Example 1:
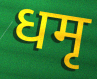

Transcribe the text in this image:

धमृ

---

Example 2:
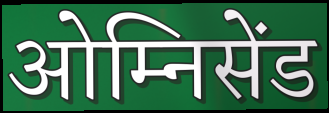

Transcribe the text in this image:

ओम्निसेंड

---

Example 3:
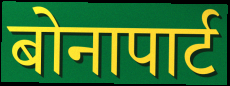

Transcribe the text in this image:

बोनापार्ट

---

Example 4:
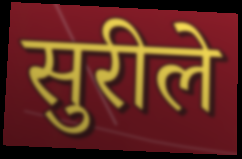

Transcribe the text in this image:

सुरीले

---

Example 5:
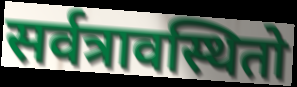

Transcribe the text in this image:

सर्वत्रावस्थितो